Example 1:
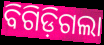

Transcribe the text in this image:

ବିଗିଡ଼ିଗଲା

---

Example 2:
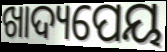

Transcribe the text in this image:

ଖାଦ୍ୟପେୟ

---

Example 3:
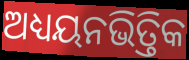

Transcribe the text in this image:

ଅଧ୍ୟୟନଭିତ୍ତିକ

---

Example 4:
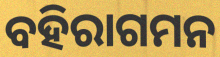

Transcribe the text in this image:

ବହିରାଗମନ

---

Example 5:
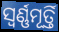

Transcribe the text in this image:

ସ୍ଵର୍ଣ୍ଣମୂର୍ତ୍ତି